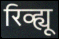
रिव्ह्यू